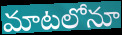
మాటలోనూ